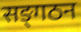
सङ्गठन